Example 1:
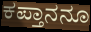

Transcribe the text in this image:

ಕಪ್ತಾನನೂ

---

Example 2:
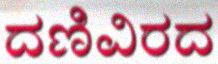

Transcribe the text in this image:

ದಣಿವಿರದ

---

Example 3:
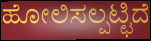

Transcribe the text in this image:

ಹೋಲಿಸಲ್ಪಟ್ಟಿದೆ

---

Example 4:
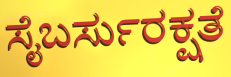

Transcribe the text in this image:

ಸೈಬರ್ಸುರಕ್ಷತೆ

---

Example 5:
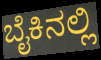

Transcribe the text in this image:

ಬೈಕಿನಲ್ಲಿ